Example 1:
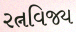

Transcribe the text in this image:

રત્નવિજ્ય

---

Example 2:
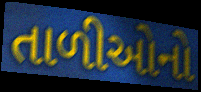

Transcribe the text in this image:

તાળીઓનો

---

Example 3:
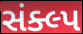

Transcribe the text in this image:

સંક્લ્પ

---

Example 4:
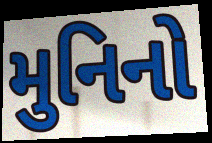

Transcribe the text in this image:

મુનિનો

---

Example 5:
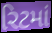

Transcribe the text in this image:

રિટમાં